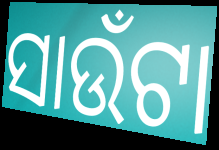
ସାଉଁଟା